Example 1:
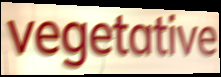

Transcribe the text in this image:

vegetative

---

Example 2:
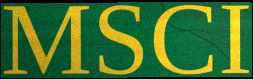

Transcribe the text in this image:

MSCI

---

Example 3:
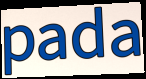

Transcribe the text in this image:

pada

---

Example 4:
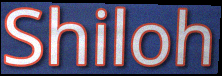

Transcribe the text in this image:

Shiloh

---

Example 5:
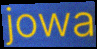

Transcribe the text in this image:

jowa